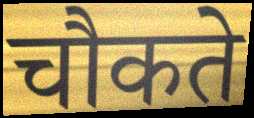
चौकते